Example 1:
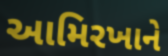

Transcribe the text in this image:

આમિરખાને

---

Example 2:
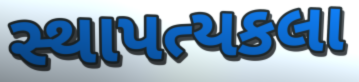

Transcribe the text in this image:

સ્થાપત્યકલા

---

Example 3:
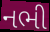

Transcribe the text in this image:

નભી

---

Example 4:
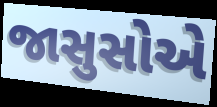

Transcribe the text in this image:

જાસુસોએ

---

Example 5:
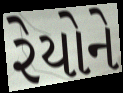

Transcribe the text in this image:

રેયોને